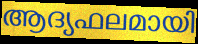
ആദ്യഫലമായി